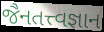
જૈનતત્ત્વજ્ઞાન